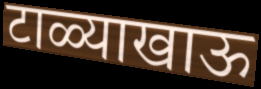
टाळ्याखाऊ